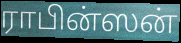
ராபின்ஸன்